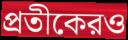
প্রতীকেরও